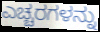
ಎಚ್ಚರಗಳನ್ನು